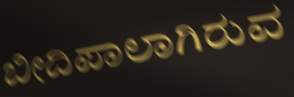
ಬೀದಿಪಾಲಾಗಿರುವ